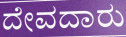
ದೇವದಾರು